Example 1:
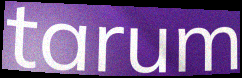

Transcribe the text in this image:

tarum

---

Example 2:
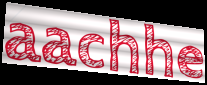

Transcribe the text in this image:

aachhe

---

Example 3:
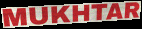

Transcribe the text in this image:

MUKHTAR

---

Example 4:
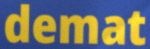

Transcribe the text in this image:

demat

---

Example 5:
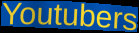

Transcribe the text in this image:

Youtubers